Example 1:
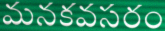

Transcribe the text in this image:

మనకవసరం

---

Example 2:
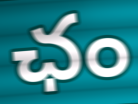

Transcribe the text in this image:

ఛం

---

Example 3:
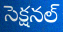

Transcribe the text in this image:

సెక్షనల్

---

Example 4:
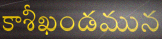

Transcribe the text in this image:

కాశీఖండమున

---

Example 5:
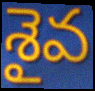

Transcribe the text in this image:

శైవ